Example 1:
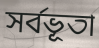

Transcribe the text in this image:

সর্বভূতা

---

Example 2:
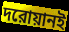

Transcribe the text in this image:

দরোয়ানই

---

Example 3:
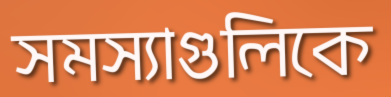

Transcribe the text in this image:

সমস্যাগুলিকে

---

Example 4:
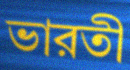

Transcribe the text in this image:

ভারতী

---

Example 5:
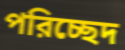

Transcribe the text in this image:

পরিচ্ছেদ